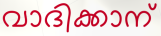
വാദിക്കാന്